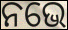
ନଭେ